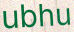
ubhu